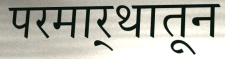
परमार्थातून